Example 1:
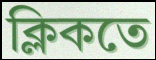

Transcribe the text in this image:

ক্লিকতে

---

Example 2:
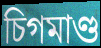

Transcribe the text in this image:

চিগমাণ্ড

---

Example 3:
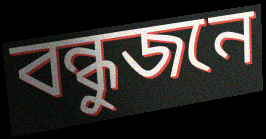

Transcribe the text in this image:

বন্ধুজনে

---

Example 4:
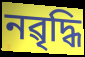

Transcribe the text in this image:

নৱৃদ্ধি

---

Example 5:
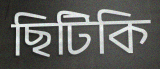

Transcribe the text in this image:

ছিটিকি